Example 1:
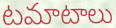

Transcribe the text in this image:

టమాటాలు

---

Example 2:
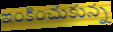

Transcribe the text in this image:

ఇంకించుకున్న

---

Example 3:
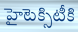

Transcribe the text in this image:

హైటెక్సిటీకి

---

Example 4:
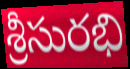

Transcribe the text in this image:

శ్రీసురభి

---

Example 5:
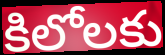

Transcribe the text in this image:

కిలోలకు